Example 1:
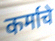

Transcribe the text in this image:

कर्माचे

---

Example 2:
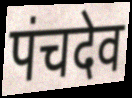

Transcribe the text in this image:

पंचदेव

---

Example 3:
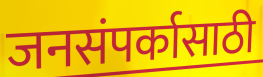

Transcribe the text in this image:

जनसंपर्कासाठी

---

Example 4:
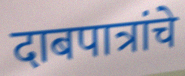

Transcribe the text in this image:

दाबपात्रांचे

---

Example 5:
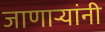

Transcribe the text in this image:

जाणाऱ्यांनी